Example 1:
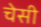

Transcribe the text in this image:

चेसी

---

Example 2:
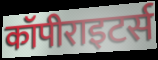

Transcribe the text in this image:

कॉपीराइटर्स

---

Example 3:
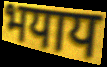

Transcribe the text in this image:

भयाय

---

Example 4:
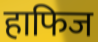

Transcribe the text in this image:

हाफिज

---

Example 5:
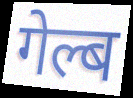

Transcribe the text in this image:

गेल्ब